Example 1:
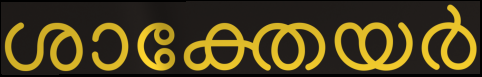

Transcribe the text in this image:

ശാക്തേയർ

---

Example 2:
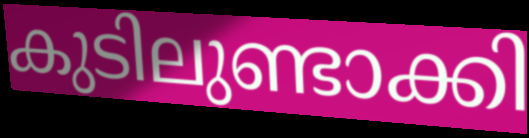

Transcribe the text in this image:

കുടിലുണ്ടാക്കി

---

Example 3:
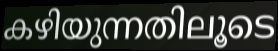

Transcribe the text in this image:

കഴിയുന്നതിലൂടെ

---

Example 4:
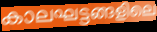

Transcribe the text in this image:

കാലഘട്ടങ്ങളിലെ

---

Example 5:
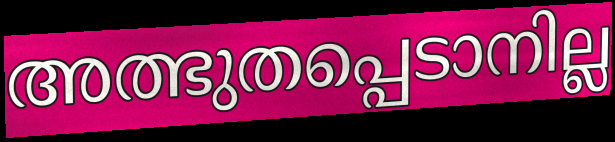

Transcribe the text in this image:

അത്ഭുതപ്പെടാനില്ല